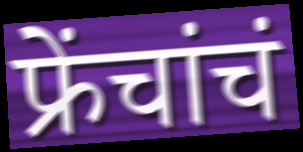
फ्रेंचांचं